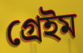
গ্রেইম